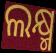
ଲକ୍ଷ୍ମ